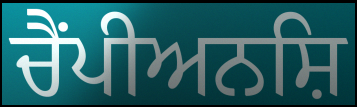
ਚੈਂਪੀਅਨਸ਼ਿ